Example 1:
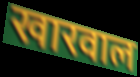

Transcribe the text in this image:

खारवाल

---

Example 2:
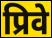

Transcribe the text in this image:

प्रिवे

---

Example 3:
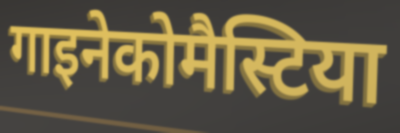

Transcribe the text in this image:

गाइनेकोमैस्टिया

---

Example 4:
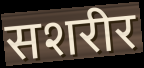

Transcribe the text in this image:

सशरीर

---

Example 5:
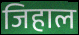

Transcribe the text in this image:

जिहाल